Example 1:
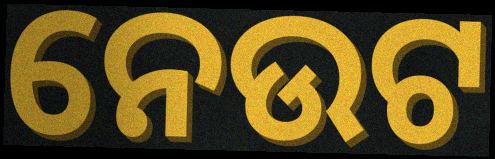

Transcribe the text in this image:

ନେଉଟ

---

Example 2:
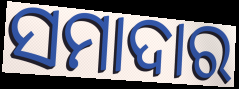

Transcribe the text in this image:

ସମାଦାର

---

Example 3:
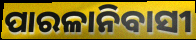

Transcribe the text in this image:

ପାରଳାନିବାସୀ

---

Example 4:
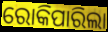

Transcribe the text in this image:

ରୋକିପାରିଲା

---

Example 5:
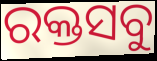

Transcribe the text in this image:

ରକ୍ତସବୁ